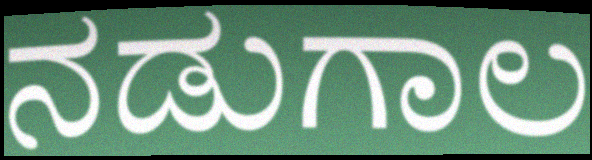
ನಡುಗಾಲ